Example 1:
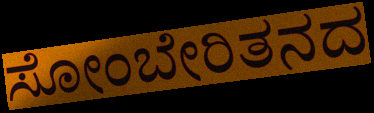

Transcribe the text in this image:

ಸೋಂಬೇರಿತನದ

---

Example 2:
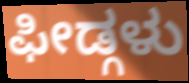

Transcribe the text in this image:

ಫೀಡ್ಗಳು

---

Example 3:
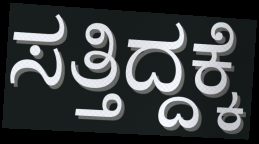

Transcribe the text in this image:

ಸತ್ತಿದ್ದಕ್ಕೆ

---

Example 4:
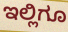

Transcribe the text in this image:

ಇಲ್ಲಿಗೂ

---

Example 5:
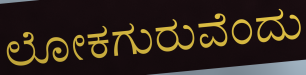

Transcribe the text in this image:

ಲೋಕಗುರುವೆಂದು